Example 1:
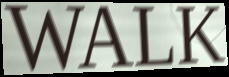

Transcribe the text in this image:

WALK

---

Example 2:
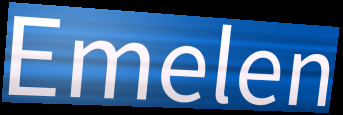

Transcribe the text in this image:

Emelen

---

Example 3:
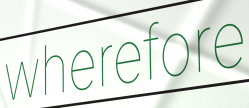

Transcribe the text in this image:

wherefore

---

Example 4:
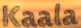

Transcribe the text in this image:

Kaala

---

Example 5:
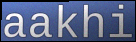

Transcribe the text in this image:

aakhi